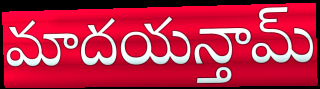
మాదయన్తామ్